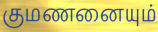
குமணனையும்